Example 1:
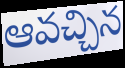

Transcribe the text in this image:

ఆవచ్చిన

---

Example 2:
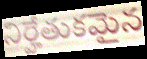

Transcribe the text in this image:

నిర్హేతుకమైన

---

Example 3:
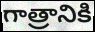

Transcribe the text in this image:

గాత్రానికి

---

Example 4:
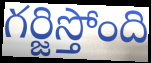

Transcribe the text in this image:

గర్జిస్తోంది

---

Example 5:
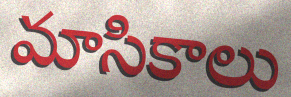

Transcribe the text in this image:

మాసికాలు